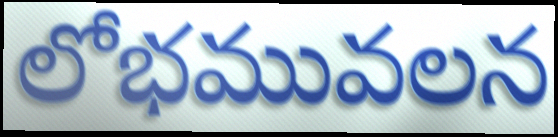
లోభమువలన